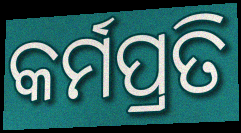
କର୍ମପ୍ରତି